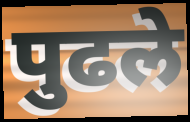
पुढले